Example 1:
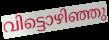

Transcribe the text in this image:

വിട്ടൊഴിഞ്ഞു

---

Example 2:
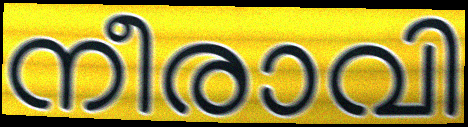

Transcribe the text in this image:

നീരാവി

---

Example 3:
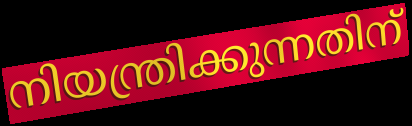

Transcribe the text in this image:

നിയന്ത്രിക്കുന്നതിന്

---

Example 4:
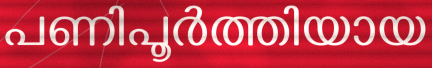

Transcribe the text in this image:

പണിപൂർത്തിയായ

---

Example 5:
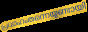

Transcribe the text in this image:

പ്രവാഹംതന്നെയുണ്ടായി